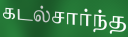
கடல்சார்ந்த